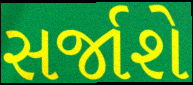
સર્જાશે